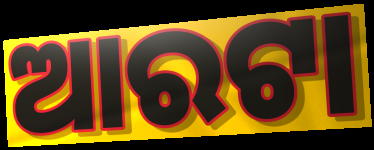
ଆରଟା